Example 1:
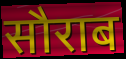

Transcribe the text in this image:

सौराब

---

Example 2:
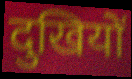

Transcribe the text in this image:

दुखियों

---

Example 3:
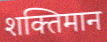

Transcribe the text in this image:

शक्तिमान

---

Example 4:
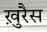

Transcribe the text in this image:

ख़ुरैस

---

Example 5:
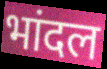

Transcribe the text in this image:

भांदल